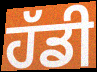
ਹੱਡੀ